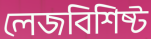
লেজবিশিষ্ট